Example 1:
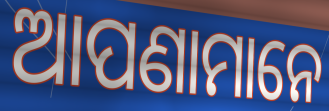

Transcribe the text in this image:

ଆପଣାମାନେ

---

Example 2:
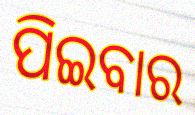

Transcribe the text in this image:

ପିଇବାର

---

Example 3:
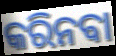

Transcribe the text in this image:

କରିନବା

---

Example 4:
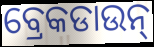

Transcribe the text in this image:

ବ୍ରେକଡାଉନ୍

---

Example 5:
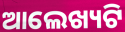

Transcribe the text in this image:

ଆଲେଖ୍ୟଟି